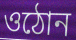
ওঠোন